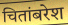
चितांबरेश